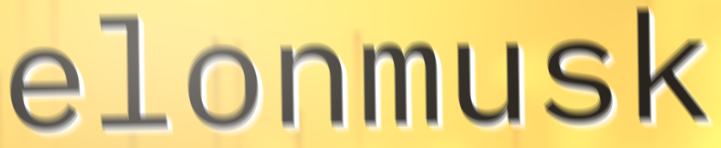
elonmusk